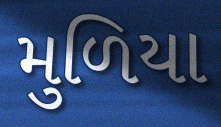
મુળિયા